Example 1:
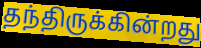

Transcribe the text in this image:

தந்திருக்கின்றது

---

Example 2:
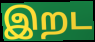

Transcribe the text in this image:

இறட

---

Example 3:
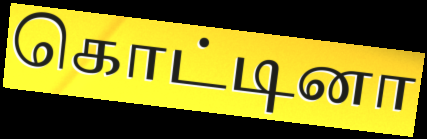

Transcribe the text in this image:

கொட்டினா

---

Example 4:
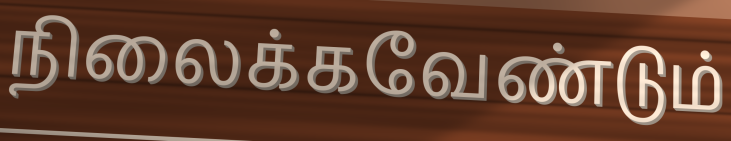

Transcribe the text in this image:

நிலைக்கவேண்டும்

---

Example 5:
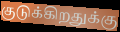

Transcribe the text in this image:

குடுக்கிறதுக்கு